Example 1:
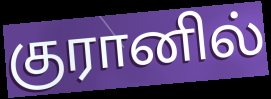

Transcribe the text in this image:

குரானில்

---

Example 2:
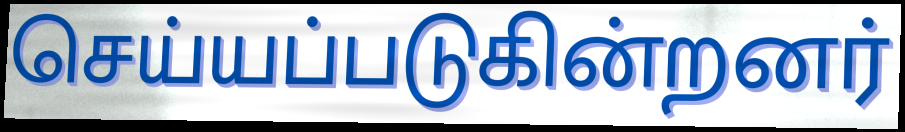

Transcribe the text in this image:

செய்யப்படுகின்றனர்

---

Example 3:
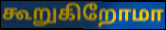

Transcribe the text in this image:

கூறுகிறோமா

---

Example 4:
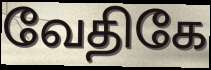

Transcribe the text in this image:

வேதிகே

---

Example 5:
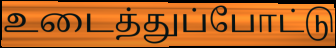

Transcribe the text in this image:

உடைத்துப்போட்டு